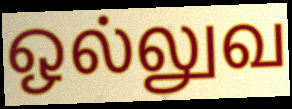
ஒல்லுவ